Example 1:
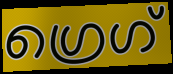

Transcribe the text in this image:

ഗ്രെഗ്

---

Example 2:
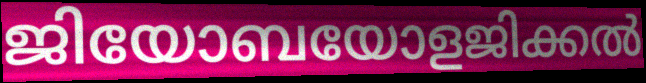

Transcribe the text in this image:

ജിയോബയോളജിക്കൽ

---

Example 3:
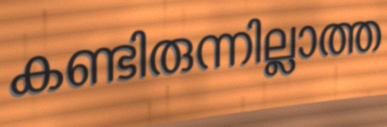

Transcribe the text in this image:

കണ്ടിരുന്നില്ലാത്ത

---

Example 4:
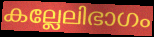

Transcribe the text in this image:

കല്ലേലിഭാഗം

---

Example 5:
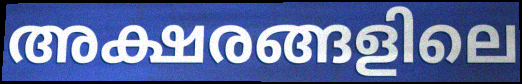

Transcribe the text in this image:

അക്ഷരങ്ങളിലെ